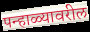
पन्हाळ्यावरील